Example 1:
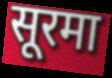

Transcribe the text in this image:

सूरमा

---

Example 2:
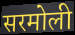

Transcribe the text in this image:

सरमोली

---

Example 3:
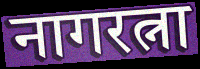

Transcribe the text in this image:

नागरत्ना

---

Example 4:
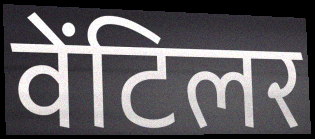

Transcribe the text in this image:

वेंटिलर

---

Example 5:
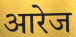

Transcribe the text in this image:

आरेज